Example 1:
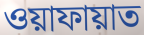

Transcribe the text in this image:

ওয়াফায়াত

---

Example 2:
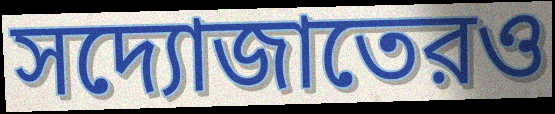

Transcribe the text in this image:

সদ্যোজাতেরও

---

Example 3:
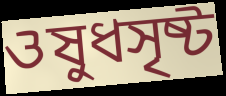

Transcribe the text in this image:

ওষুধসৃষ্ট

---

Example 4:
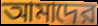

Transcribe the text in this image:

আমাদের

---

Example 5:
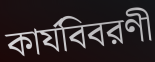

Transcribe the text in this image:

কার্যবিবরণী